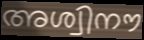
അശ്വിനൗ